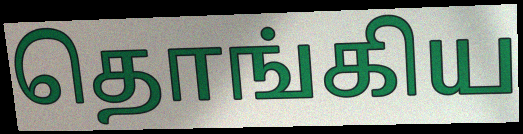
தொங்கிய